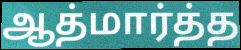
ஆத்மார்த்த